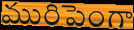
మురిపెంగా